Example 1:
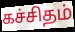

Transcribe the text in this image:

கச்சிதம்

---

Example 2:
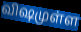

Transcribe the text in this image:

விஷமுள்ள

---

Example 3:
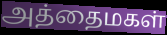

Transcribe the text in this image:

அத்தைமகள்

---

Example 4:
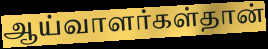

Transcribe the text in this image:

ஆய்வாளர்கள்தான்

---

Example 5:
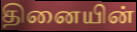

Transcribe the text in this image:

தினையின்